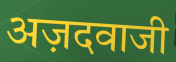
अज़दवाजी